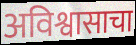
अविश्वासाचा